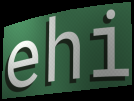
ehi